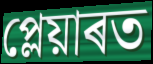
প্লেয়াৰত